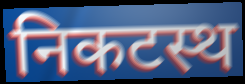
निकटस्‍थ